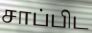
சாப்பிட